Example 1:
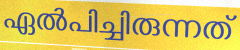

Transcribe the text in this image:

ഏൽപിച്ചിരുന്നത്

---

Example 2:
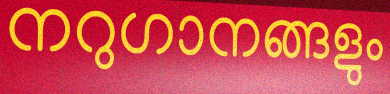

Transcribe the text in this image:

നറുഗാനങ്ങളും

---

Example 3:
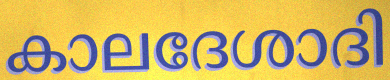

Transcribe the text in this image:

കാലദേശാദി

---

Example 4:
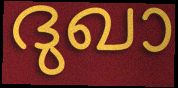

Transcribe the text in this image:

ദുഖാ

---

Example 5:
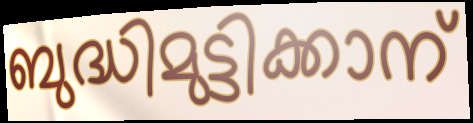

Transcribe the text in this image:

ബുദ്ധിമുട്ടിക്കാന്